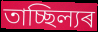
তাচ্ছিল্যৰ